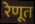
रेणूत